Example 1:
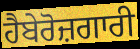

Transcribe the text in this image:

ਹੈਬੇਰੋਜ਼ਗਾਰੀ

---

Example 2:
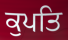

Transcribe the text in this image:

ਕੁਪਤਿ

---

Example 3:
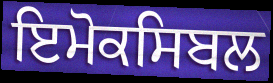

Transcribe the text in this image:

ਇਮੋਕਸਿਬਲ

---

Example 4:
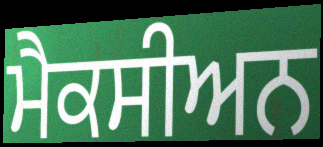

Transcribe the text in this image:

ਮੈਕਸੀਅਨ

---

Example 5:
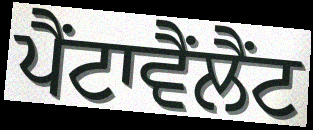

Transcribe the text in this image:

ਪੈਂਟਾਵੈਂਲੈਂਟ